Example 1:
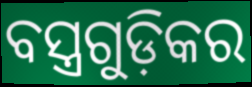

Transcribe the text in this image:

ବସ୍ତ୍ରଗୁଡ଼ିକର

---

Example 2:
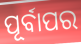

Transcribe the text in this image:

ପୂର୍ବାପର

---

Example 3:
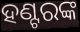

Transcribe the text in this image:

ହଣ୍ଟରଙ୍କ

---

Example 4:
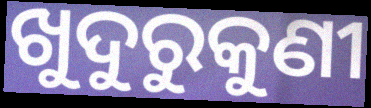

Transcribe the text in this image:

ଖୁଦୁରୁକୁଣୀ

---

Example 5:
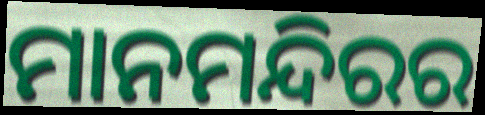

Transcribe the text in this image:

ମାନମନ୍ଦିରର